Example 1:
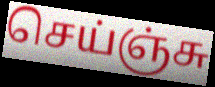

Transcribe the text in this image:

செய்ஞ்சு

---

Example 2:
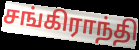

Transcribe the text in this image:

சங்கிராந்தி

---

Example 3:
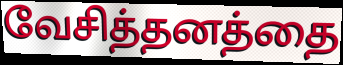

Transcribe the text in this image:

வேசித்தனத்தை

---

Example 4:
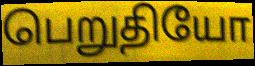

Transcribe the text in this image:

பெறுதியோ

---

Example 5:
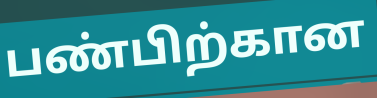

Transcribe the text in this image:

பண்பிற்கான